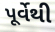
પૂર્વેથી